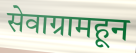
सेवाग्रामहून